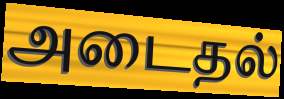
அடைதல்